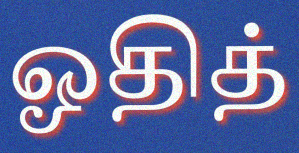
ஓதித்